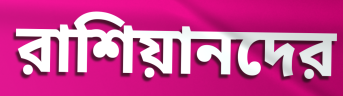
রাশিয়ানদের